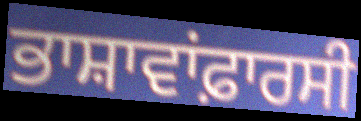
ਭਾਸ਼ਾਵਾਂਫ਼ਾਰਸੀ